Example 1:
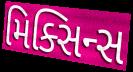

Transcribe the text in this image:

મિક્સિન્સ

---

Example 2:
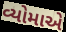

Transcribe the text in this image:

વ્યોમાએ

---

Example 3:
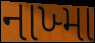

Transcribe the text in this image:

નાખ્મા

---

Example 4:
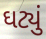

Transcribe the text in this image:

ઘટ્યું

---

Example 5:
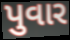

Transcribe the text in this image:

પુવાર